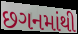
છગનમાંથી